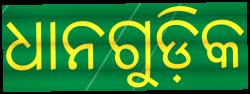
ଧାନଗୁଡ଼ିକ